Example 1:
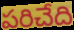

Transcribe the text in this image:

పరిచేది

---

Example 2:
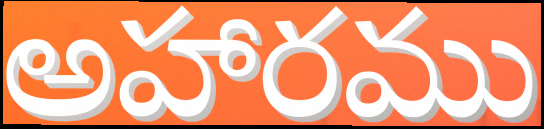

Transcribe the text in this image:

అహారము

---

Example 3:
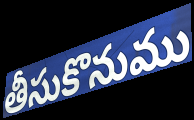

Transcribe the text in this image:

తీసుకొనుము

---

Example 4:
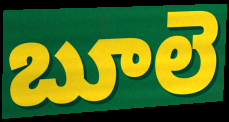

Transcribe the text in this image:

బూలె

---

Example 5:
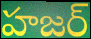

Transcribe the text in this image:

హజర్